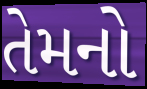
તેમનો